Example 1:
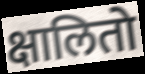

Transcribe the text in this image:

क्षालितो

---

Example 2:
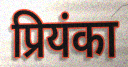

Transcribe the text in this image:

प्रियंका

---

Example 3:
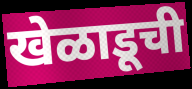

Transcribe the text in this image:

खेळाडूची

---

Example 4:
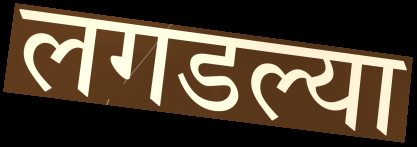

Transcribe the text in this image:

लगडल्या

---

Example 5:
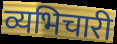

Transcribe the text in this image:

व्यभिचारी